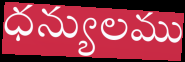
ధన్యులము